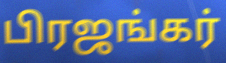
பிரஜங்கர்